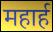
महार्ह